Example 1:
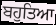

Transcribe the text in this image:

ਬਹੁਤਿਆ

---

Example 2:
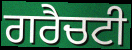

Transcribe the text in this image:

ਗਰੈਚਟੀ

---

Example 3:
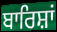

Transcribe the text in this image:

ਬਾਰਿਸ਼ਾਂ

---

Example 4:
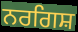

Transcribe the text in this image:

ਨਰਗਿਸ਼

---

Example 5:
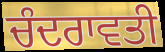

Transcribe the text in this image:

ਚੰਦਰਾਵਤੀ